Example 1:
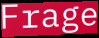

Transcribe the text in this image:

Frage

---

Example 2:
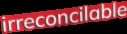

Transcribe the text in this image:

irreconcilable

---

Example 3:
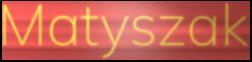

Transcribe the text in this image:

Matyszak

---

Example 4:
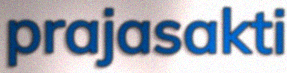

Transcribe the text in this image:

prajasakti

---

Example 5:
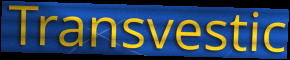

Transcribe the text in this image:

Transvestic